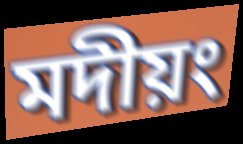
মদীয়ং